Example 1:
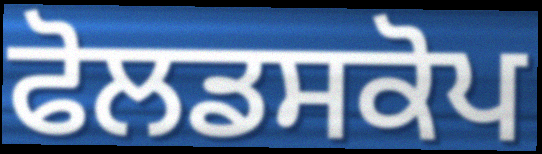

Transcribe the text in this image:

ਫੋਲਡਸਕੋਪ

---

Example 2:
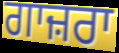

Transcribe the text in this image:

ਗਾਜ਼ਰਾ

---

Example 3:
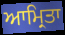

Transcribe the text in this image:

ਆਮ੍ਰਿਤਾ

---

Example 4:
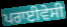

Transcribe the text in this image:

ਪਰਾਈਵੇਸੀ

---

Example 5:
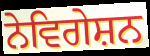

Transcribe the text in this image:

ਨੇਵਿਗੇਸ਼ਨ